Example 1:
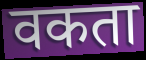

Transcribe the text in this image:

वकता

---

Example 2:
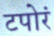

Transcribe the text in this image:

टपोरं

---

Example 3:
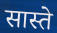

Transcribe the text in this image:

सास्ते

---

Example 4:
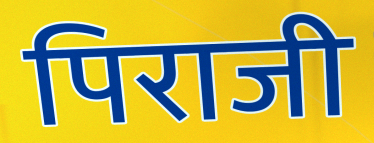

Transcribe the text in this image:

पिराजी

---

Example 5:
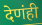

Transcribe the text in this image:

देणंही